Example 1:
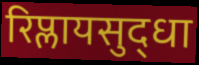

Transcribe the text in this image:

रिप्लायसुद्धा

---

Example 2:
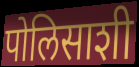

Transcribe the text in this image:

पोलिसाशी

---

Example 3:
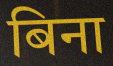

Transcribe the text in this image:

बिना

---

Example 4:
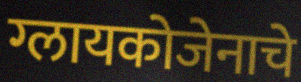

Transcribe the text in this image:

ग्लायकोजेनाचे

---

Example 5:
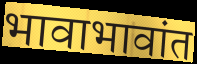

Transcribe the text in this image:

भावाभावांत